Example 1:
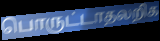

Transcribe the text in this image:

பொருட்டாதலறிக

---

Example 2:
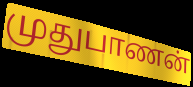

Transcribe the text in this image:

முதுபாணன்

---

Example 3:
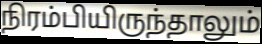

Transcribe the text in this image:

நிரம்பியிருந்தாலும்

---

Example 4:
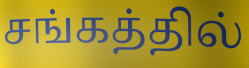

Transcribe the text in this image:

சங்கத்தில்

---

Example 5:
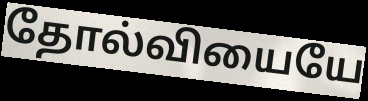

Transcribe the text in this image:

தோல்வியையே